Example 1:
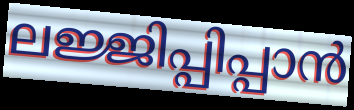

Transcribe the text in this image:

ലജ്ജിപ്പിപ്പാൻ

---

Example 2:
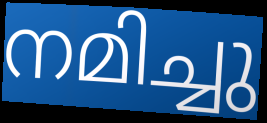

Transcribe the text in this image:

നമിച്ചു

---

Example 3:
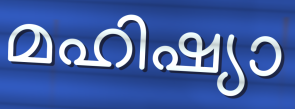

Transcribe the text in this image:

മഹിഷ്യാ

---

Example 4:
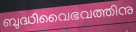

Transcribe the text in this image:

ബുദ്ധിവൈഭവത്തിനു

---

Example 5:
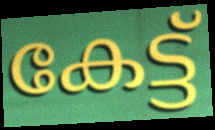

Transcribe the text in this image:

കേട്ട്